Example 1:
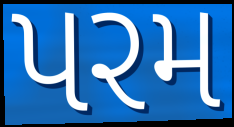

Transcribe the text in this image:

પરમ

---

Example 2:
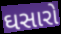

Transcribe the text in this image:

ઘસારો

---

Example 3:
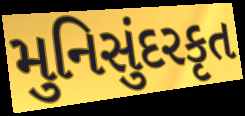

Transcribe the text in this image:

મુનિસુંદરકૃત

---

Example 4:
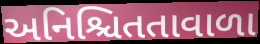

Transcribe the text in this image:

અનિશ્ચિતતાવાળા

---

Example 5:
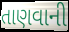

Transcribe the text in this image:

તાણવાની